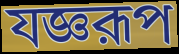
যজ্ঞরূপ